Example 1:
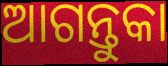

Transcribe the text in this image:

ଆଗନ୍ତୁକା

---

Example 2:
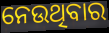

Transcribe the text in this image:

ନେଉଥିବାର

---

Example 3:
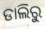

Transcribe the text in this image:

ଡାଲିରୁ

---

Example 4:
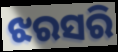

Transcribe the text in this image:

ଝରସରି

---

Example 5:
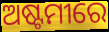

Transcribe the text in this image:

ଅଷ୍ଟମୀରେ